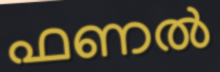
ഫണൽ